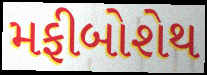
મફીબોશેથ